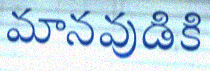
మానవుడికి